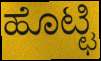
ಹೊಟ್ಟಿ